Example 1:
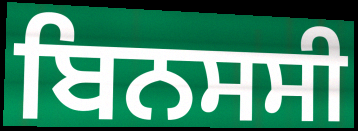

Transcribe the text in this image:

ਬਿਨਸਸੀ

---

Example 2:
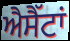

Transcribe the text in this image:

ਐਸੈੱਟਾਂ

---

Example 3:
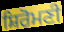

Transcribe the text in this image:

ਸ਼ਿਰੋਮਣੀ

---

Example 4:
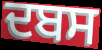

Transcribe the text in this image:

ਦਬਸ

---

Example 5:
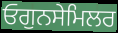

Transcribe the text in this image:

ਓਗੁਨਸੇਮਿਲਰ